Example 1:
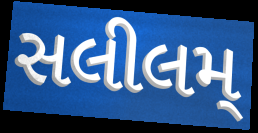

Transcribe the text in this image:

સલીલમ્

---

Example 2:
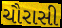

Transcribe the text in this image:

ચૌરાસી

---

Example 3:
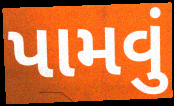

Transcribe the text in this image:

પામવું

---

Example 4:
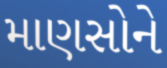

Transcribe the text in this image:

માણસોને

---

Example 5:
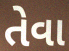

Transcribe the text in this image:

તેવા